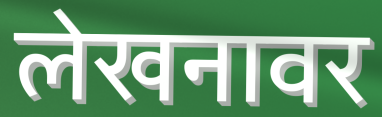
लेखनावर